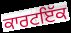
ਕਾਰਟਇੱਕ